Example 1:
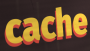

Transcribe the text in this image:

cache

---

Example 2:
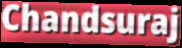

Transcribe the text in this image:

Chandsuraj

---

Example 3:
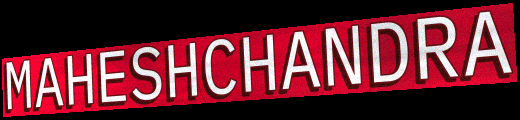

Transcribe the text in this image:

MAHESHCHANDRA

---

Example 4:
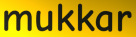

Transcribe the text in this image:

mukkar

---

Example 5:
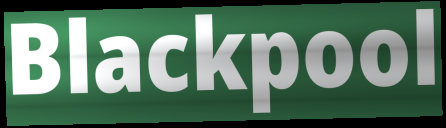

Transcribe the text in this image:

Blackpool